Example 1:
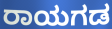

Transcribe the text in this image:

ರಾಯಗಡ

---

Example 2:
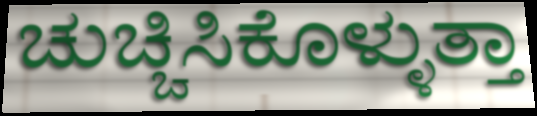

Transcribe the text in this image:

ಚುಚ್ಚಿಸಿಕೊಳ್ಳುತ್ತಾ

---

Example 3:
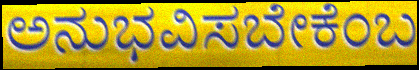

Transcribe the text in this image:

ಅನುಭವಿಸಬೇಕೆಂಬ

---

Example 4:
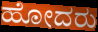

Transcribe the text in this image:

ಹೋದರು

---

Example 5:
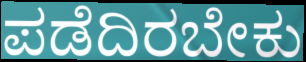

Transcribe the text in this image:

ಪಡೆದಿರಬೇಕು